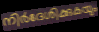
നിർദേശിക്കുകയും